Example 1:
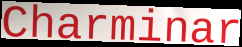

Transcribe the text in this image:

Charminar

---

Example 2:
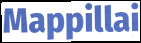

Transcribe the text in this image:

Mappillai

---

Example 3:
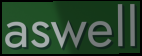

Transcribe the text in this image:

aswell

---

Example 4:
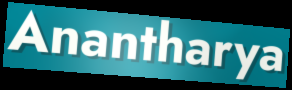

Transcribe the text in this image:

Anantharya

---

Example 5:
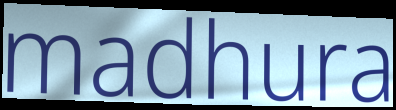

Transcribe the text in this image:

madhura